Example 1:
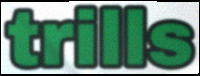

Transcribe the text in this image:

trills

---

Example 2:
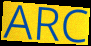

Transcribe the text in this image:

ARC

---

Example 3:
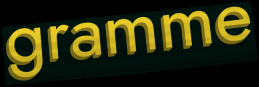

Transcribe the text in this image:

gramme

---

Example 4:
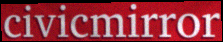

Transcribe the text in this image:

civicmirror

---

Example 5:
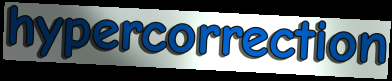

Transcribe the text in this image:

hypercorrection